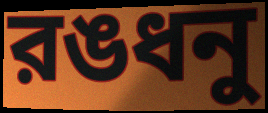
রঙধনু